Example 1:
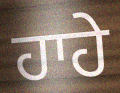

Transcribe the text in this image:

ਹਾਹੇ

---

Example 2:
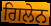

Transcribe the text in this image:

ਗਿਲੇਨ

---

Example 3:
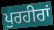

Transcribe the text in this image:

ਪੁਰਹੀਰਾਂ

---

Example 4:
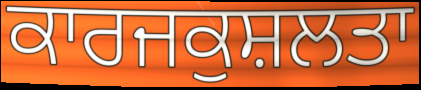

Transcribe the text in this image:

ਕਾਰਜਕੁਸ਼ਲਤਾ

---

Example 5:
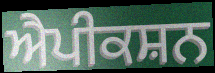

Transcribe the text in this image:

ਐਪੀਕਸ਼ਨ